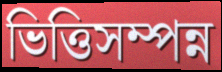
ভিত্তিসম্পন্ন